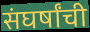
संघर्षांची